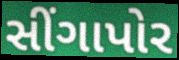
સીંગાપોર